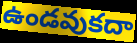
ఉండవుకదా